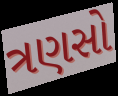
ત્રણસો